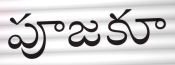
పూజకూ